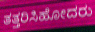
ತತ್ತರಿಸಿಹೋದರು